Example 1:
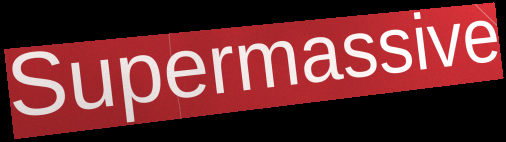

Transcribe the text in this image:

Supermassive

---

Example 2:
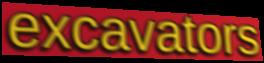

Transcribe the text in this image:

excavators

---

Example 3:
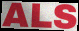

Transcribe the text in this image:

ALS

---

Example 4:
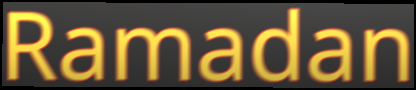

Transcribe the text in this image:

Ramadan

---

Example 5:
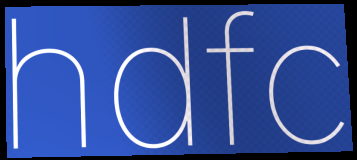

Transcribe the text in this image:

hdfc